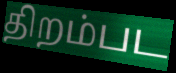
திறம்பட